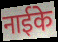
नाईके